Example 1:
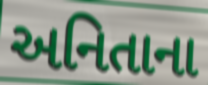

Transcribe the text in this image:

અનિતાના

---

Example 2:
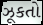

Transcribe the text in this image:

ઝૂકતો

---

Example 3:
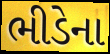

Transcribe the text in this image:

ભીડેના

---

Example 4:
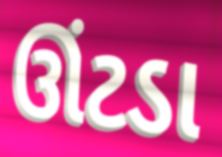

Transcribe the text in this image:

ઊંટડા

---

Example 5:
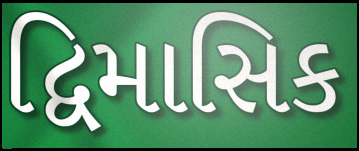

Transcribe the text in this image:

દ્વિમાસિક